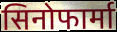
सिनोफार्मा